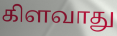
கிளவாது